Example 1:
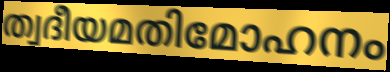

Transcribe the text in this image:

ത്വദീയമതിമോഹനം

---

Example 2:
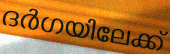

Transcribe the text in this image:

ദർഗയിലേക്ക്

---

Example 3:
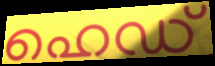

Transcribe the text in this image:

ഹെഡ്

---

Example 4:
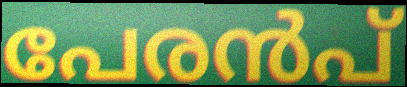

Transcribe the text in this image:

പേരൻപ്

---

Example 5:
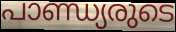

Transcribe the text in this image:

പാണ്ഡ്യരുടെ